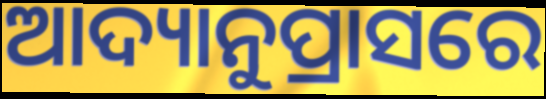
ଆଦ୍ୟାନୁପ୍ରାସରେ